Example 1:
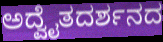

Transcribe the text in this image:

ಅದ್ವೈತದರ್ಶನದ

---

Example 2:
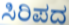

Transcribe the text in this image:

ಸಿರಿಪದ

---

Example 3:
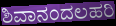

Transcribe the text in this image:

ಶಿವಾನಂದಲಹರಿ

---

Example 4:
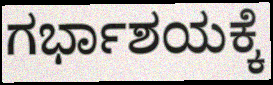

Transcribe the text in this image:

ಗರ್ಭಾಶಯಕ್ಕೆ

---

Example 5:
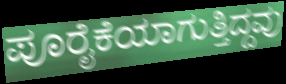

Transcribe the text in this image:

ಪೂರೈಕೆಯಾಗುತ್ತಿದ್ದವು